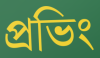
প্রভিং